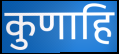
कुणाहि